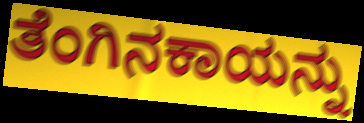
ತೆಂಗಿನಕಾಯನ್ನು